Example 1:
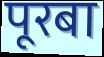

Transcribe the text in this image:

पूरबा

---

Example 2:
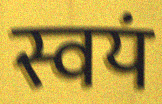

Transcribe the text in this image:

स्‍वयं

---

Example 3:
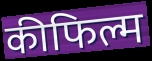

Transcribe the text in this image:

कीफिल्म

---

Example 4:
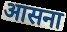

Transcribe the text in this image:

आसना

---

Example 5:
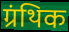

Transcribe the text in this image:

ग्रंथिक